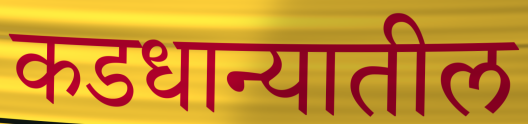
कडधान्यातील